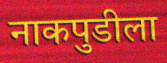
नाकपुडीला